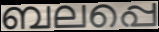
ബലപ്പെ